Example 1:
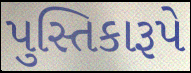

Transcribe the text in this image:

પુસ્તિકારૂપે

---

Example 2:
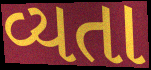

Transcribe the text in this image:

વ્યતા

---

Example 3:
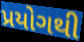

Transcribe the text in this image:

પ્રયોગથી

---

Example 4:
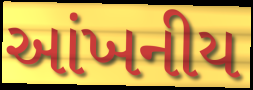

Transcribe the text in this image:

આંખનીય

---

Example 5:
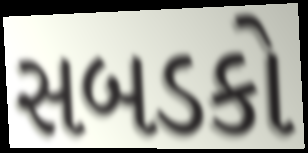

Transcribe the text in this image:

સબડકો